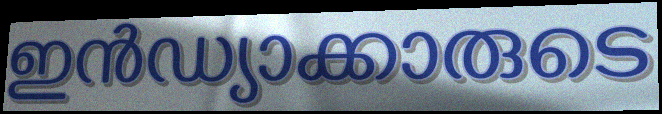
ഇൻഡ്യാക്കാരുടെ